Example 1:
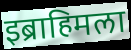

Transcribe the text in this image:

इब्राहिमला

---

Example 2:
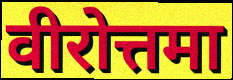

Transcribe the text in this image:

वीरोत्तमा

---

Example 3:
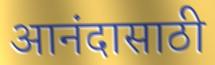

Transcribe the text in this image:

आनंदासाठी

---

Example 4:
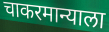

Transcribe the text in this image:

चाकरमान्याला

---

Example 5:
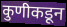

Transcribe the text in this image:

कुणीकडून